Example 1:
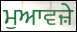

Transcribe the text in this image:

ਮੁਆਵਜ਼ੇ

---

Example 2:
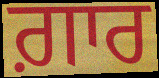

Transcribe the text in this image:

ਗ਼ਾਰ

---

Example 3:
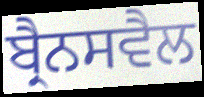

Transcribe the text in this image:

ਬ੍ਰੈਨਸਵੈਲ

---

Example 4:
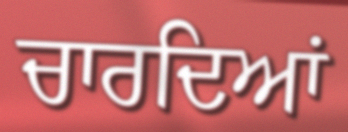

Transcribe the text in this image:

ਚਾਰਦਿਆਂ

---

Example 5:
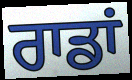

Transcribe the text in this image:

ਰਾਡਾਂ